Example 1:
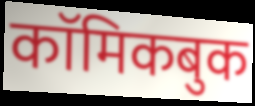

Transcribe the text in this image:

कॉमिकबुक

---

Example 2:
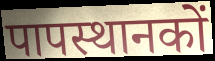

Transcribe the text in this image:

पापस्थानकों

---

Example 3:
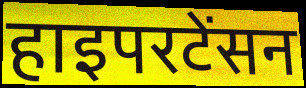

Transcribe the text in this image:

हाइपरटेंसन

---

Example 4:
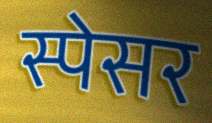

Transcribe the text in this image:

स्पेसर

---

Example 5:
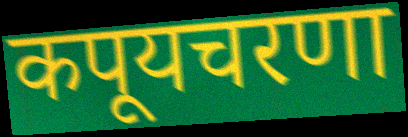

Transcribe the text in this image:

कपूयचरणा